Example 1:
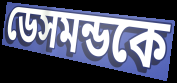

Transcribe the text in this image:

ডেসমন্ডকে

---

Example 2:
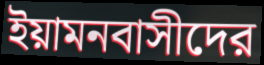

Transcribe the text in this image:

ইয়ামনবাসীদের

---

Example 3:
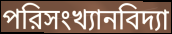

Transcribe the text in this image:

পরিসংখ্যানবিদ্যা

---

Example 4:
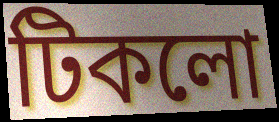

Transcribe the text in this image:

টিকলো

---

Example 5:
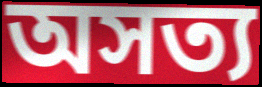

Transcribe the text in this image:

অসত্য